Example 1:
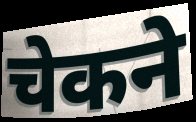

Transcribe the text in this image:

चेकने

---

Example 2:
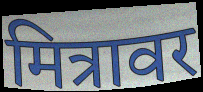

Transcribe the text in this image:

मित्रावर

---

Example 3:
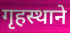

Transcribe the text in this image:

गृहस्थाने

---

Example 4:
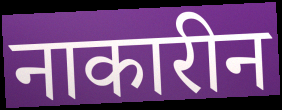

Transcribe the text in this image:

नाकारीन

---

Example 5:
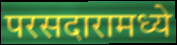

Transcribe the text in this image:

परसदारामध्ये